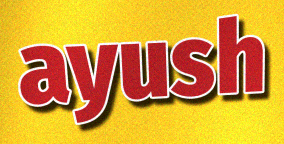
ayush